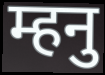
म्हनु